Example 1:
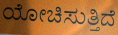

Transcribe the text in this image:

ಯೋಚಿಸುತ್ತಿದೆ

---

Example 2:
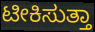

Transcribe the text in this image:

ಟೀಕಿಸುತ್ತಾ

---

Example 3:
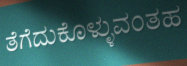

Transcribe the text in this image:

ತೆಗೆದುಕೊಳ್ಳುವಂತಹ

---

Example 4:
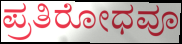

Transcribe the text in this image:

ಪ್ರತಿರೋಧವೂ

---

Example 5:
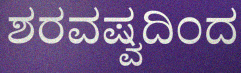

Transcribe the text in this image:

ಶರವಷ್ವದಿಂದ